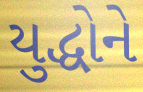
યુદ્ધોને